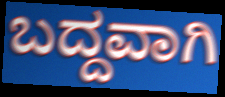
ಬದ್ದವಾಗಿ